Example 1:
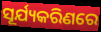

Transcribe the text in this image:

ସୂର୍ଯ୍ୟକରିଣରେ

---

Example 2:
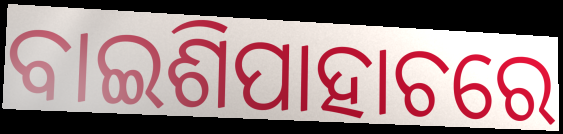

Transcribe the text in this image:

ବାଇଶିପାହାଚରେ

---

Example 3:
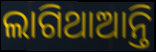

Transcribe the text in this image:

ଲାଗିଥାଆନ୍ତି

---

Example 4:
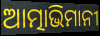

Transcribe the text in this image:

ଆତ୍ମାଭିମାନୀ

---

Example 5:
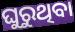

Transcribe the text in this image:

ଘୁରୁଥିବା